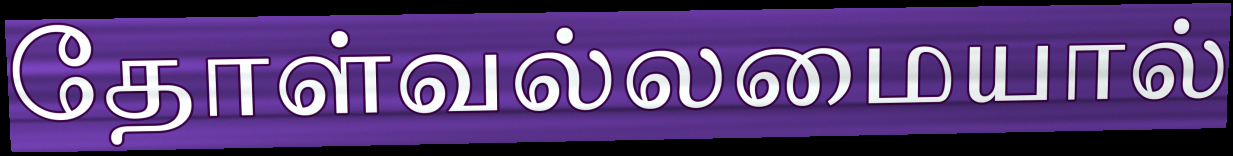
தோள்வல்லமையால்